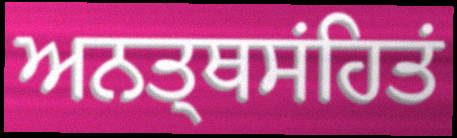
ਅਨਤ੍ਥਸਂਹਿਤਂ